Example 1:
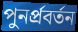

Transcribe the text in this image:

পুনর্প্রবর্তন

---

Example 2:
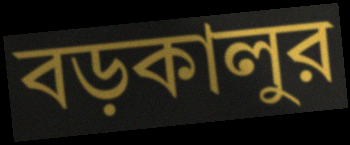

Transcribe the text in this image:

বড়কালুর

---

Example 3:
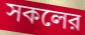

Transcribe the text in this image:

সকলের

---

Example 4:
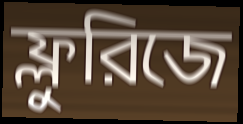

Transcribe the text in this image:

ফ্লুরিজে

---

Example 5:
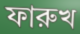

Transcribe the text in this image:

ফারুখ